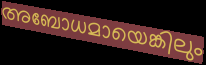
അബോധമായെങ്കിലും